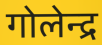
गोलेन्द्र